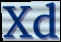
Xd